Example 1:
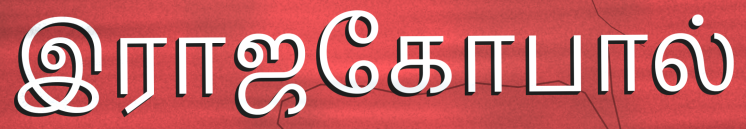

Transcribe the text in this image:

இராஜகோபால்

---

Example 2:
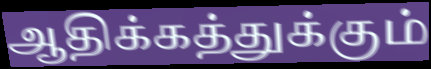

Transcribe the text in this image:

ஆதிக்கத்துக்கும்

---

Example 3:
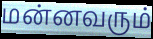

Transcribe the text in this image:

மன்னவரும்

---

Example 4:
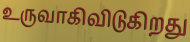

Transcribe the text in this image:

உருவாகிவிடுகிறது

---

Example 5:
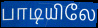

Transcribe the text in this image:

பாடியிலே